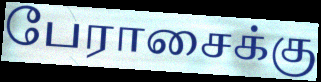
பேராசைக்கு